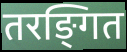
तरङ्गित